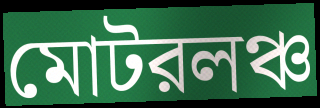
মোটরলঞ্চ